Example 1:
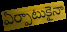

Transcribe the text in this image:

ఏర్పాటుకైనా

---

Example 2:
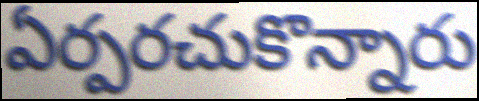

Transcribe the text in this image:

ఏర్పరచుకొన్నారు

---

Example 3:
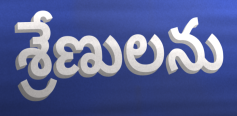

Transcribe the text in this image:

శ్రేణులను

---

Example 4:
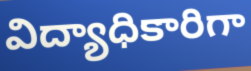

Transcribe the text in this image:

విద్యాధికారిగా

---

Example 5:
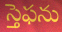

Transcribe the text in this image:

స్తెఫను